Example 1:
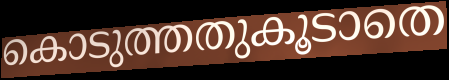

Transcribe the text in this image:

കൊടുത്തതുകൂടാതെ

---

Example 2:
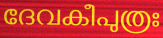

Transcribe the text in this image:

ദേവകീപുത്രഃ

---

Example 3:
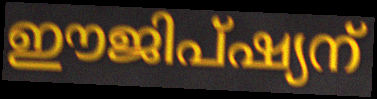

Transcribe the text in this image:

ഈജിപ്ഷ്യന്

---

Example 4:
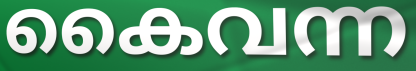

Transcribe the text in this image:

കൈവന്ന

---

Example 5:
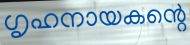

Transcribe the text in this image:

ഗൃഹനായകന്റെ